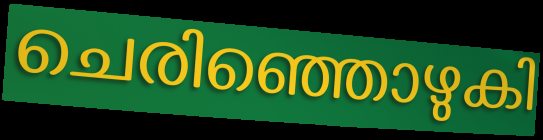
ചെരിഞ്ഞൊഴുകി